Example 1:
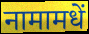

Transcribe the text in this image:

नामामधें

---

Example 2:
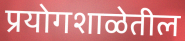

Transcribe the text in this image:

प्रयोगशाळेतील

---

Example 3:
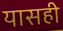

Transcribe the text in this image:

यासही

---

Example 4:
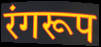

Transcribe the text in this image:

रंगरूप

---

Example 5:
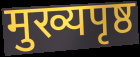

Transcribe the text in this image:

मुख्यपृष्ठ